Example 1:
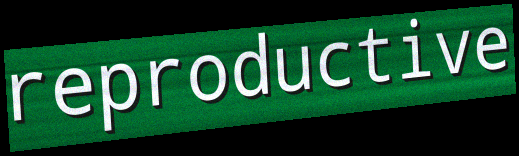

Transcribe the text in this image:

reproductive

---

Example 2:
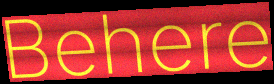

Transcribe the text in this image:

Behere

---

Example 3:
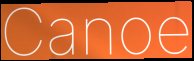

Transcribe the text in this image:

Canoe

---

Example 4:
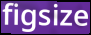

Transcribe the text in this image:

figsize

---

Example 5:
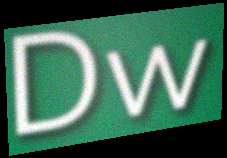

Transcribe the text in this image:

Dw